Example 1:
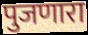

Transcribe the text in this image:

पुजणारा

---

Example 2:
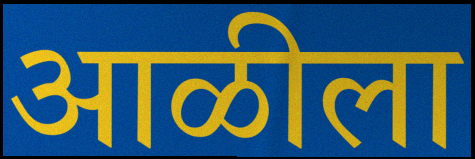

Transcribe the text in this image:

आळीला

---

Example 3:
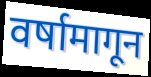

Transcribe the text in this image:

वर्षामागून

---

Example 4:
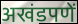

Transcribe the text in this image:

अखंडपणें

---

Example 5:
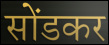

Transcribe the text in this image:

सोंडकर